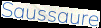
Saussaure